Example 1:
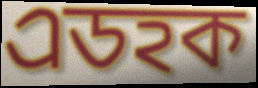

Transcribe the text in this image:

এডহক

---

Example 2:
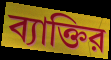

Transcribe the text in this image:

ব্যাক্তির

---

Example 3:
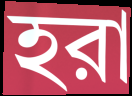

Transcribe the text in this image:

হরা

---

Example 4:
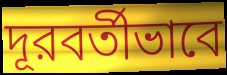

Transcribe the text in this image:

দূরবর্তীভাবে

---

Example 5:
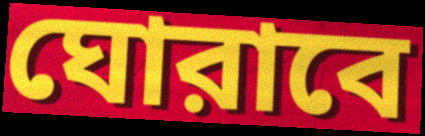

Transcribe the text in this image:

ঘোরাবে